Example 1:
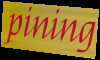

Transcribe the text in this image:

pining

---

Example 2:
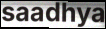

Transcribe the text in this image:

saadhya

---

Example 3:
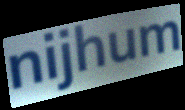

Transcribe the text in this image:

nijhum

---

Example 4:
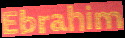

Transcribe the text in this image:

Ebrahim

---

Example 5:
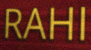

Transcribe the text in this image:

RAHI